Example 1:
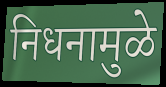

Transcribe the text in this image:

निधनामुळे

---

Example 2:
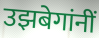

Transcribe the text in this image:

उझबेगांनीं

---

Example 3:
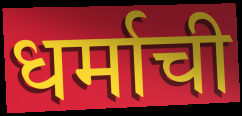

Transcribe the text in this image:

धर्माची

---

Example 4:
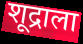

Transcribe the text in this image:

शूद्राला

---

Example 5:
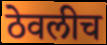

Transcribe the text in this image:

ठेवलीच